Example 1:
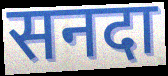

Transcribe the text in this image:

सनदा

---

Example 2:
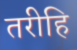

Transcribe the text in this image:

तरीहि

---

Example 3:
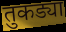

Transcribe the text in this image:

तुकड्या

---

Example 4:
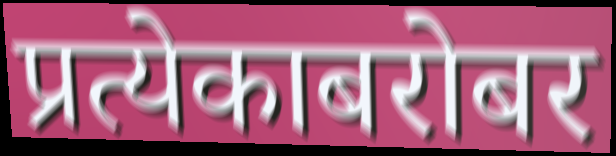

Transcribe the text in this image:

प्रत्येकाबरोबर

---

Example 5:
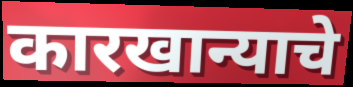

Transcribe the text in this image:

कारखान्याचे